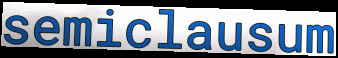
semiclausum